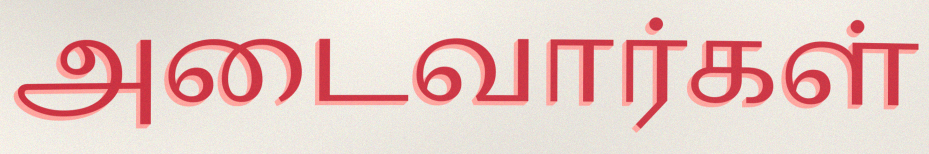
அடைவார்கள்